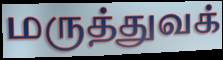
மருத்துவக்